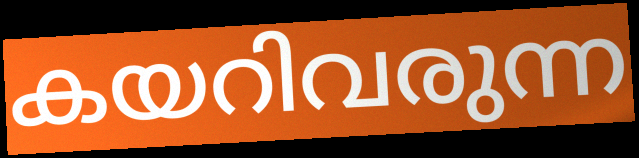
കയറിവരുന്ന